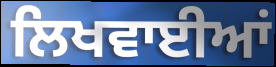
ਲਿਖਵਾਈਆਂ